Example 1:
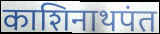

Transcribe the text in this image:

काशिनाथपंत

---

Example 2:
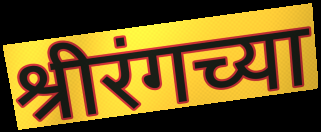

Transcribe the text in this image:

श्रीरंगच्या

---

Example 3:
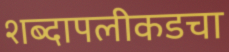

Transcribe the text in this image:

शब्दापलीकडचा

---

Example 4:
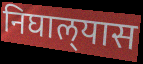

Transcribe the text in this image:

निघाल्यास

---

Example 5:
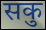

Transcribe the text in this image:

सकु